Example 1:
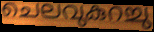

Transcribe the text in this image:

ചെലവുകുറച്ചു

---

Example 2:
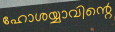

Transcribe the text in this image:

ഹോശയ്യാവിന്റെ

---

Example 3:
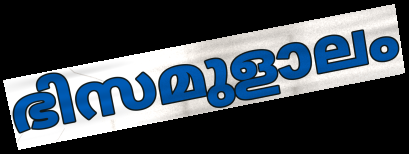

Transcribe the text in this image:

ഭിസമുളാലം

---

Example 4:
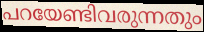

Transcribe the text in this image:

പറയേണ്ടിവരുന്നതും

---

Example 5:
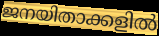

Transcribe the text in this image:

ജനയിതാക്കളിൽ